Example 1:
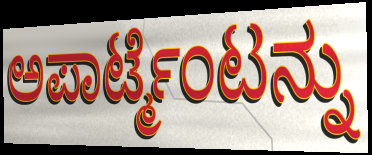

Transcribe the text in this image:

ಅಪಾರ್ಟ್ಮೆಂಟನ್ನು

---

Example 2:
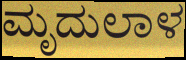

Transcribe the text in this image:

ಮೃದುಲಾಳ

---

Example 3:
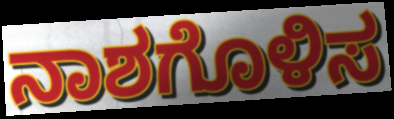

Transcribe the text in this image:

ನಾಶಗೊಳಿಸ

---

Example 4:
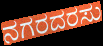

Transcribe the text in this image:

ನಗರದರಸು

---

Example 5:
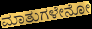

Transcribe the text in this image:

ಮಾತುಗಳೇನೋ